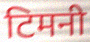
टिमनी